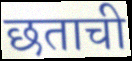
छताची